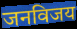
जनविजय